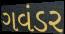
ગવંડર